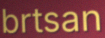
brtsan